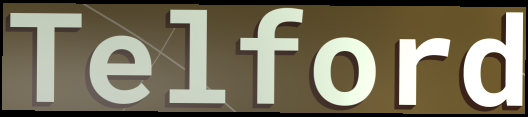
Telford